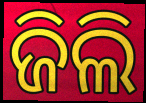
ଜିଲି